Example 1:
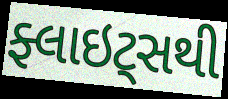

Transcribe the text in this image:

ફ્લાઇટ્સથી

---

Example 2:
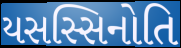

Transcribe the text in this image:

યસસ્સિનોતિ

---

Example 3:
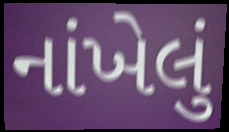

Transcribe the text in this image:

નાંખેલું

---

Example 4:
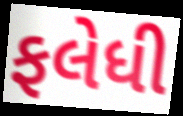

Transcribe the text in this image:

ફલેધી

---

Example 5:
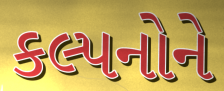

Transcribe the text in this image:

કલ્પનોને